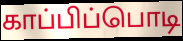
காப்பிப்பொடி